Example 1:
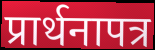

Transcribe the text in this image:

प्रार्थनापत्र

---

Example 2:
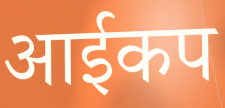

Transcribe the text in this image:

आईकप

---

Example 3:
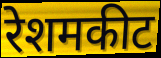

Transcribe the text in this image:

रेशमकीट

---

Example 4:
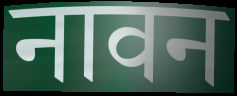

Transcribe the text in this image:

नावन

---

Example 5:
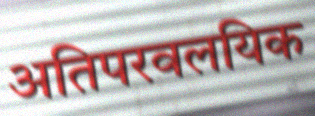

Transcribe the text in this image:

अतिपरवलयिक